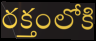
రక్తంలోకి